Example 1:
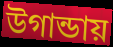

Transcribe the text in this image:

উগান্ডায়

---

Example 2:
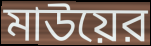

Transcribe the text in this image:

মাউয়ের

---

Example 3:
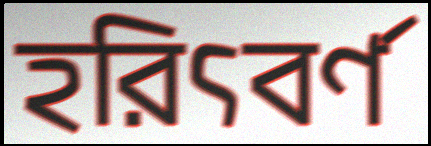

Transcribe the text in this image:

হরিৎবর্ণ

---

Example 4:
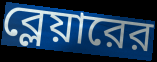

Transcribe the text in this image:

ব্লেয়ারের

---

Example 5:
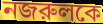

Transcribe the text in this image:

নজরুলকে